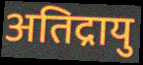
अतिद्रायु